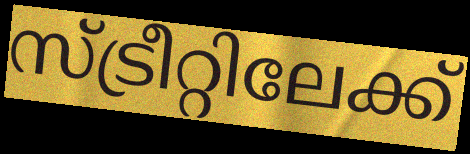
സ്ട്രീറ്റിലേക്ക്